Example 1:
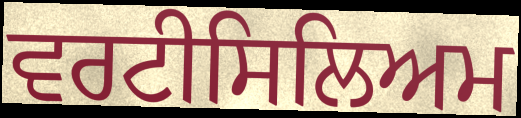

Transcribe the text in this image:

ਵਰਟੀਸਿਲਿਅਮ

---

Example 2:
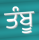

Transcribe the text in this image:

ਤੰਬੂ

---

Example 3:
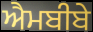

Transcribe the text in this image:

ਐਮਬੀਬੇ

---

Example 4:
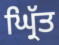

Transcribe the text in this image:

ਘ੍ਰਿੱਤ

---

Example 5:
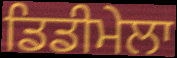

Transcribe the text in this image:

ਡਿਡੀਮੇਲਾ